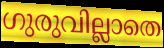
ഗുരുവില്ലാതെ